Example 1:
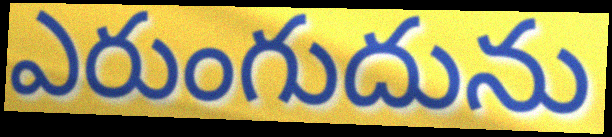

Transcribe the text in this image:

ఎరుంగుదును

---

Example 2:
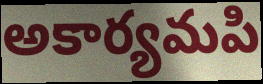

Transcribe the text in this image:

అకార్యమపి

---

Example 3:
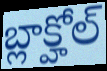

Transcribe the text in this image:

బ్లాక్హోల్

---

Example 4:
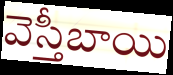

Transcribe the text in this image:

వెస్తీబాయి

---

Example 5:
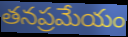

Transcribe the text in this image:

తనప్రమేయం